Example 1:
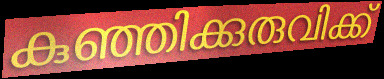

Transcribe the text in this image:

കുഞ്ഞിക്കുരുവിക്ക്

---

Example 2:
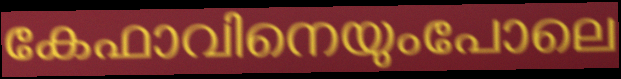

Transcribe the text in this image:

കേഫാവിനെയുംപോലെ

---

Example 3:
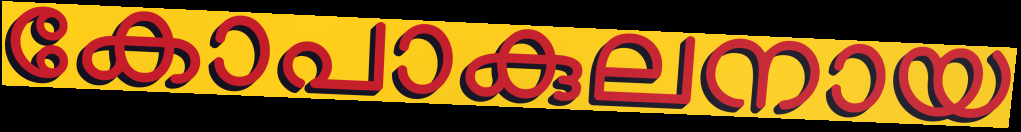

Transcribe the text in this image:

കോപാകുലനായ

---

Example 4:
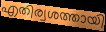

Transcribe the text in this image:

എതിര്വശത്തായി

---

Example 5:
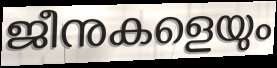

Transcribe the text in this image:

ജീനുകളെയും